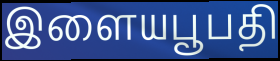
இளையபூபதி